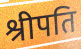
श्रीपति